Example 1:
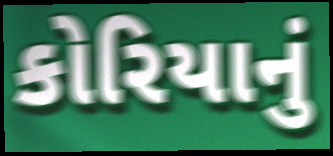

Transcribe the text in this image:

કોરિયાનું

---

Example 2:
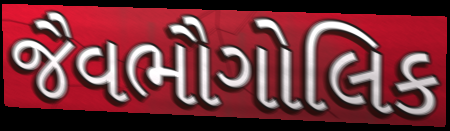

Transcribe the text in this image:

જૈવભૌગોલિક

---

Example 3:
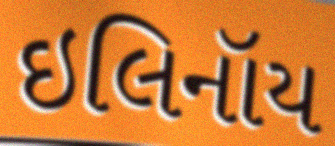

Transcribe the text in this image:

ઇલિનૉય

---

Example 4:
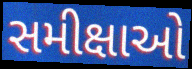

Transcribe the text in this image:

સમીક્ષાઓ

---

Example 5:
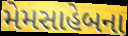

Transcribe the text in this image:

મેમસાહેબના